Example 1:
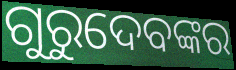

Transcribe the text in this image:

ଗୁରୁଦେବଙ୍କର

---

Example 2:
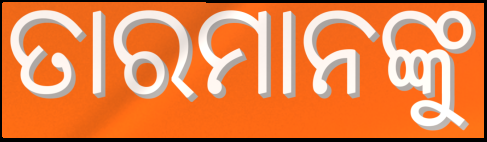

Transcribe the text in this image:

ତାରମାନଙ୍କୁ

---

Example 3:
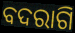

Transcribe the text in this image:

ବଦରାଗି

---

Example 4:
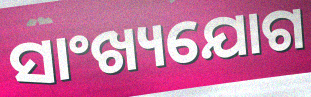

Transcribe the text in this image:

ସାଂଖ୍ୟଯୋଗ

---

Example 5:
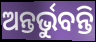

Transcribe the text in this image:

ଅନ୍ତର୍ଭୁବନ୍ତି